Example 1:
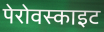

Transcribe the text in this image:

पेरोवस्काइट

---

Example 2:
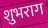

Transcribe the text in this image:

शुभराग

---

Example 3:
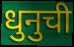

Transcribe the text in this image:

धुनुची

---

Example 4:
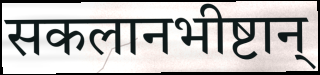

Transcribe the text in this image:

सकलानभीष्टान्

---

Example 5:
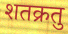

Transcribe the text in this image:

शतक्रतु